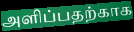
அளிப்பதற்காக